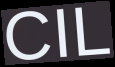
CIL